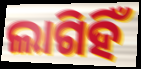
ଲାଗିହିଁ